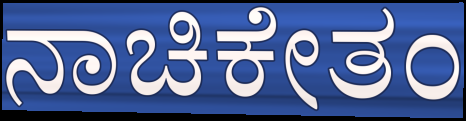
ನಾಚಿಕೇತಂ